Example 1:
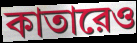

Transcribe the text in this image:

কাতারেও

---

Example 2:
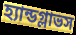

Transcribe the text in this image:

হ্যান্ডগ্লাভস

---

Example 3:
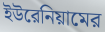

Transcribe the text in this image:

ইউরেনিয়ামের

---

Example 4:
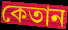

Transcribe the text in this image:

কেতান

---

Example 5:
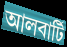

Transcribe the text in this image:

আলবার্টি